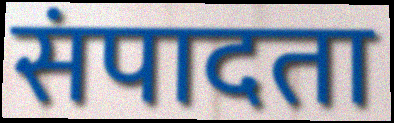
संपादता